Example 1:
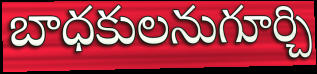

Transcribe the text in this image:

బాధకులనుగూర్చి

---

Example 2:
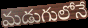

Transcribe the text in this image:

మడుగులోనే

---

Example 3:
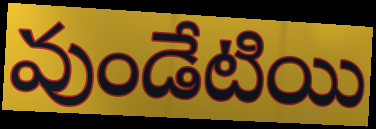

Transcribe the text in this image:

వుండేటియి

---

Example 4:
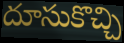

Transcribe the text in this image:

దూసుకొచ్చి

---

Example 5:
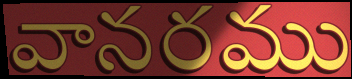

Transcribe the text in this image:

వానరము